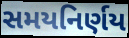
સમયનિર્ણય